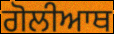
ਗੋਲੀਆਥ